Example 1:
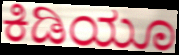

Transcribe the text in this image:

ಕಿಡಿಯೂ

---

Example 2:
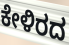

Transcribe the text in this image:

ಕೇಳಿರದ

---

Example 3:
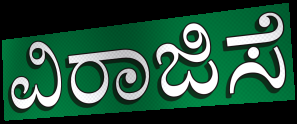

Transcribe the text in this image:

ವಿರಾಜಿಸೆ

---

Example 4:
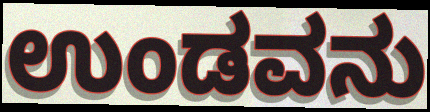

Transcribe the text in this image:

ಉಂಡವನು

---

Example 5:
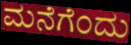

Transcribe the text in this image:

ಮನೆಗೆಂದು